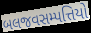
બલજવસમ્પત્તિયો